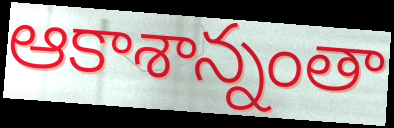
ఆకాశాన్నంతా